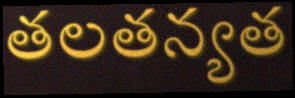
తలతన్యత